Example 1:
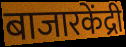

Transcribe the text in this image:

बाजारकेंद्री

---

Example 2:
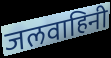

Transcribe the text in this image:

जलवाहिनी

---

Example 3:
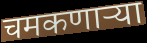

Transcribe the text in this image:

चमकणाऱ्या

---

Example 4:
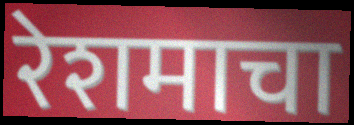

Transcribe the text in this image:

रेशमाचा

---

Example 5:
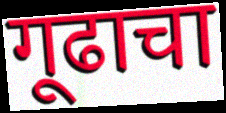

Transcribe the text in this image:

गूढाचा